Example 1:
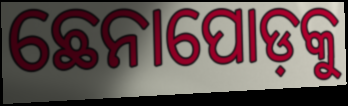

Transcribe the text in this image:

ଛେନାପୋଡ଼କୁ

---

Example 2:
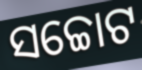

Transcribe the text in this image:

ସଚ୍ଚୋଟ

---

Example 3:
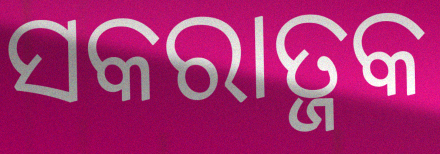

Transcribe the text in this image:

ସକରାତ୍ଜକ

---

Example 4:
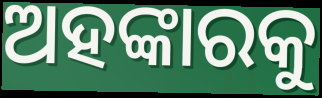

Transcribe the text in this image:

ଅହଙ୍କାରକୁ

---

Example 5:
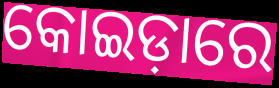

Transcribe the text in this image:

କୋଇଡ଼ାରେ